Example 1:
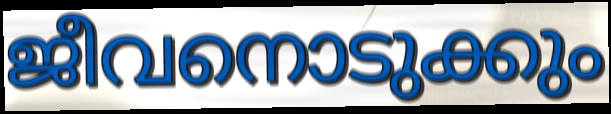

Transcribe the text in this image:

ജീവനൊടുക്കും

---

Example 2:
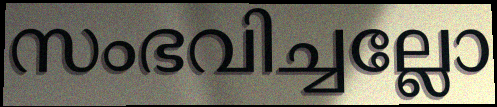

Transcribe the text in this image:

സംഭവിച്ചല്ലോ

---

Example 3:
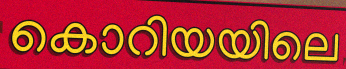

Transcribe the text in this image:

കൊറിയയിലെ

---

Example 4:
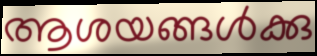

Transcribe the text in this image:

ആശയങ്ങൾക്കു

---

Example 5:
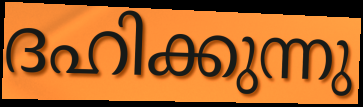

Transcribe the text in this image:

ദഹിക്കുന്നു